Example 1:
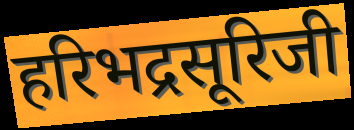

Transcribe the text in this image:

हरिभद्रसूरिजी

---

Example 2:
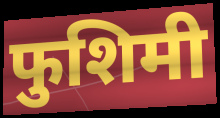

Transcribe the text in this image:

फुशिमी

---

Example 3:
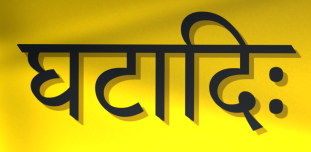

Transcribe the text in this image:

घटादिः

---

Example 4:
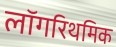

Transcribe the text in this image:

लॉगरिथमिक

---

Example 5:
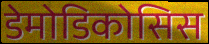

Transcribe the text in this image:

डेमोडिकोसिस